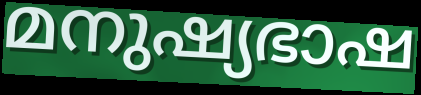
മനുഷ്യഭാഷ